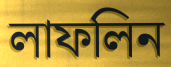
লাফলিন